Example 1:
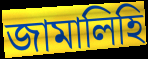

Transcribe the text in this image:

জামালিহি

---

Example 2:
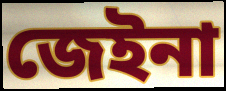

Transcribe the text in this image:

জেইনা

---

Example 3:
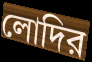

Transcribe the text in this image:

লোদির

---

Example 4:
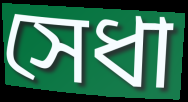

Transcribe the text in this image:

সেধা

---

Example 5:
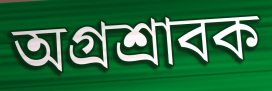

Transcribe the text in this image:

অগ্রশ্রাবক